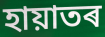
হায়াতৰ